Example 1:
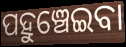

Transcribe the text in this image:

ପହୁଞ୍ଚେଇବା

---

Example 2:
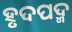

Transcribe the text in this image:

ହୃଦପଦ୍ମ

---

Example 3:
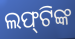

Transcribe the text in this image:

ଲଫ୍‌ଟିଙ୍କ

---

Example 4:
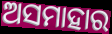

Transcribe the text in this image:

ଅସମାହାର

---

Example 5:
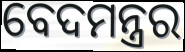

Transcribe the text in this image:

ବେଦମନ୍ତ୍ରର